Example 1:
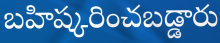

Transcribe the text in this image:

బహిష్కరించబడ్డారు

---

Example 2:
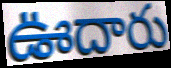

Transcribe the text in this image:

ఊదారు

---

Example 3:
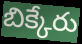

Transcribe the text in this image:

బిక్కేరు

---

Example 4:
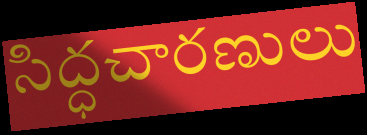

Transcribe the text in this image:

సిద్ధచారణులు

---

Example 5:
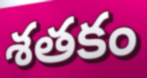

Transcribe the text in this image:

శతకం